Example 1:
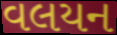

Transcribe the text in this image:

વલયન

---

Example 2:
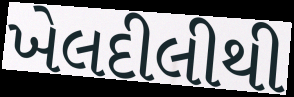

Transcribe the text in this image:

ખેલદીલીથી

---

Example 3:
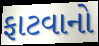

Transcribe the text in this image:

ફાટવાનો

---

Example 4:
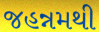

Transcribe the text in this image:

જહન્નમથી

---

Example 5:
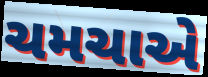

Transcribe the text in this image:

ચમચાએ